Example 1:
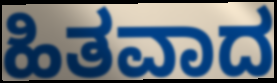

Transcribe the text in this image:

ಹಿತವಾದ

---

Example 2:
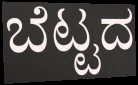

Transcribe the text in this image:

ಬೆಟ್ಟದ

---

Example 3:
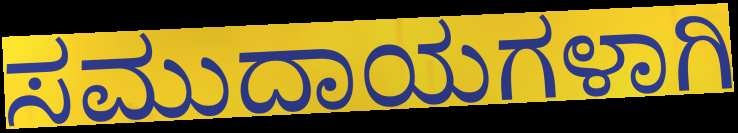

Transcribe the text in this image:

ಸಮುದಾಯಗಳಾಗಿ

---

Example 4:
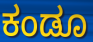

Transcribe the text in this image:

ಕಂಡೂ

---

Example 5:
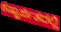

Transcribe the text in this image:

ಕಷ್ಟಾರ್ಜಿತದಲ್ಲಿ